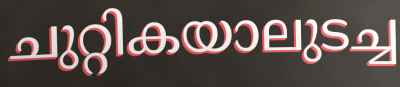
ചുറ്റികയാലുടച്ച